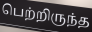
பெற்றிருந்த